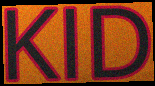
KID